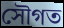
সৌগত